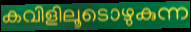
കവിളിലൂടൊഴുകുന്ന